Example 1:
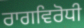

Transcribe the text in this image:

ਰਾਗਵਿਰੋਧੀ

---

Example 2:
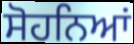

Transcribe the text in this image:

ਸੋਹਨਿਆਂ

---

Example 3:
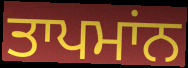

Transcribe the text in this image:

ਤਾਪਮਾਂਨ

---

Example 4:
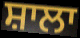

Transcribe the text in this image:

ਸ਼ਾਲਾ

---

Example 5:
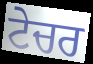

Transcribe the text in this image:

ਟੇਚਰ